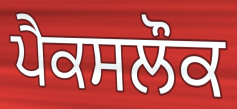
ਪੈਕਸਲੌਕ